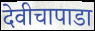
देवीचापाडा